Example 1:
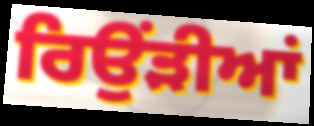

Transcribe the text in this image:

ਰਿਉਂੜੀਆਂ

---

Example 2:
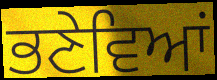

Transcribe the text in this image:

ਭਣੇਵਿਆਂ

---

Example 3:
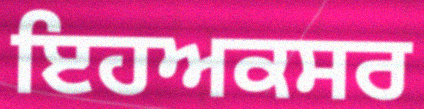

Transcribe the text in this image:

ਇਹਅਕਸਰ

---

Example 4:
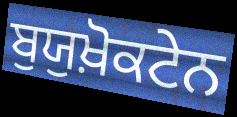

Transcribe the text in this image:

ਬੁਯੁਖ਼ੋਕਟੇਨ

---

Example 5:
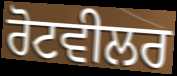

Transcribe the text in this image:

ਰੋਟਵੀਲਰ